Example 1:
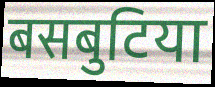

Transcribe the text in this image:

बसबुटिया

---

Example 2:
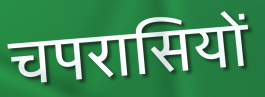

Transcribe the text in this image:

चपरासियों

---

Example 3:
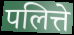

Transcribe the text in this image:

पलित्ते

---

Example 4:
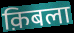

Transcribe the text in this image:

क़िबला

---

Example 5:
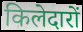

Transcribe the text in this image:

किलेदारों